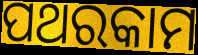
ପଥରକାମ